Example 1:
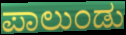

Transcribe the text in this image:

ಪಾಲುಂಡು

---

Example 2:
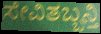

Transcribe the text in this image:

ಸೇವಿತಬ್ಬನ್ತಿ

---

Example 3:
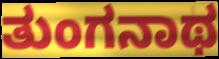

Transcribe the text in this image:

ತುಂಗನಾಥ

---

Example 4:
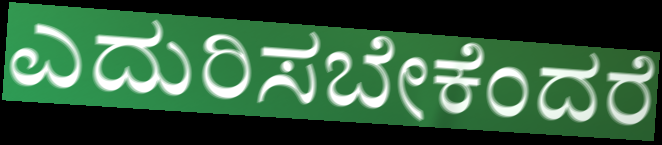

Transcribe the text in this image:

ಎದುರಿಸಬೇಕೆಂದರೆ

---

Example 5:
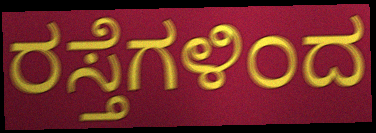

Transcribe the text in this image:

ರಸ್ತೆಗಳಿಂದ